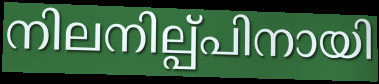
നിലനില്പ്പിനായി